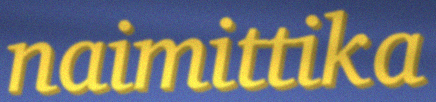
naimittika